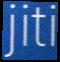
jiti